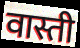
वास्ती